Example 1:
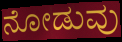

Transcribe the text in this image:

ನೋಡುವು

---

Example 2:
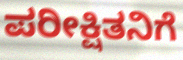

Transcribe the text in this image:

ಪರೀಕ್ಷಿತನಿಗೆ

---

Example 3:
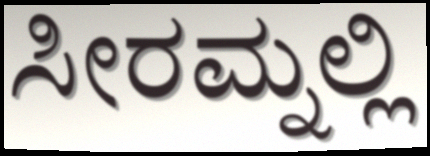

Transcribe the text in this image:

ಸೀರಮ್ನಲ್ಲಿ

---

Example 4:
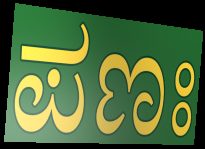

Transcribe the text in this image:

ಪಣಃ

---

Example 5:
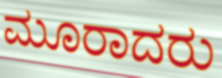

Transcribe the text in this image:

ಮೂರಾದರು